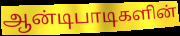
ஆன்டிபாடிகளின்